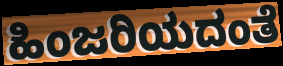
ಹಿಂಜರಿಯದಂತೆ